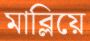
মাব্লিয়ে